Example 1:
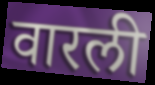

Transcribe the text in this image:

वारली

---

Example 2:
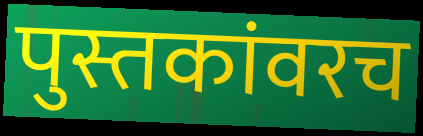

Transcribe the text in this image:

पुस्तकांवरच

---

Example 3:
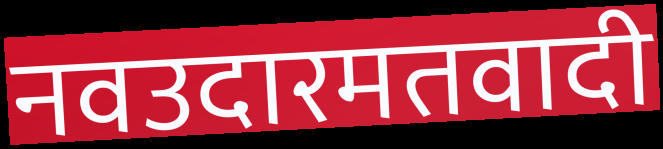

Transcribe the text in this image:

नवउदारमतवादी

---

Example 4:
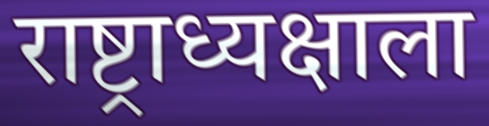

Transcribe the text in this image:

राष्ट्राध्यक्षाला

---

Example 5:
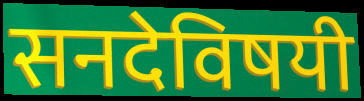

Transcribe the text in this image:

सनदेविषयी